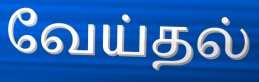
வேய்தல்